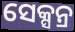
ସେକ୍ସନ୍ର